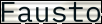
Fausto